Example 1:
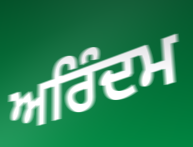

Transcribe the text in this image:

ਅਰਿੰਦਮ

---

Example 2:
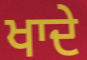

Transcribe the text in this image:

ਖਾਦੇ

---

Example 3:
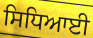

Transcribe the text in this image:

ਸਿਧਿਆਈ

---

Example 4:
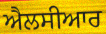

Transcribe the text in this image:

ਐਲਸੀਆਰ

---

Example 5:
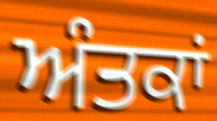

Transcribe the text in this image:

ਅੰਤਕਾਂ